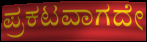
ಪ್ರಕಟವಾಗದೇ